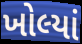
ખોલ્યાં